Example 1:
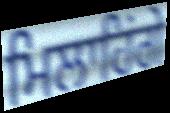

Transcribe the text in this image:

ਮਿਲਾਹਿਂਗੇ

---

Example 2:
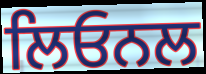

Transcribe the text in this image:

ਲਿਓਨਲ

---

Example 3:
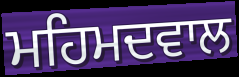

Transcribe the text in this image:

ਮਹਿਮਦਵਾਲ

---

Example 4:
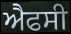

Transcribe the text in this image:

ਐਫਸੀ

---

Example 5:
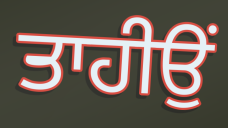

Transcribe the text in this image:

ਤਾਹੀਉਂ